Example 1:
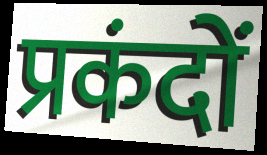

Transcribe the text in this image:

प्रकंदों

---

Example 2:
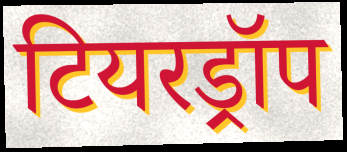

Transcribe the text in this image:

टियरड्रॉप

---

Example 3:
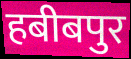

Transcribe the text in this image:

हबीबपुर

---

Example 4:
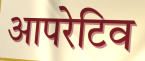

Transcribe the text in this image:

आपरेटिव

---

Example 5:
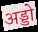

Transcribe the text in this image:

अड्डो